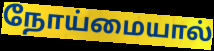
நோய்மையால்